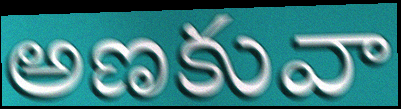
అణకువా